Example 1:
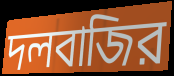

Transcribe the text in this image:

দলবাজির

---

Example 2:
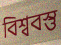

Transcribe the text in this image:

বিশ্ববস্তু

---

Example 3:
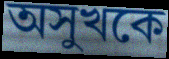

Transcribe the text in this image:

অসুখকে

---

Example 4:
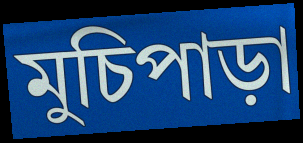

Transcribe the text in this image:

মুচিপাড়া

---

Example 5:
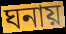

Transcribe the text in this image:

ঘনায়